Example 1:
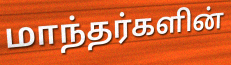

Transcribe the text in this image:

மாந்தர்களின்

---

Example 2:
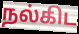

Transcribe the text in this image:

நல்கிட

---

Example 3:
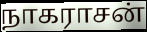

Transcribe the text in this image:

நாகராசன்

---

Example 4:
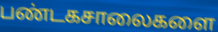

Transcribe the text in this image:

பண்டகசாலைகளை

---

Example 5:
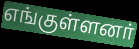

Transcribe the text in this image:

எங்குள்ளனர்